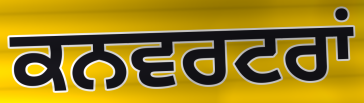
ਕਨਵਰਟਰਾਂ